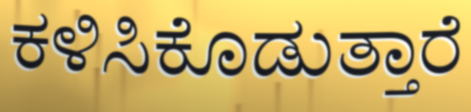
ಕಳಿಸಿಕೊಡುತ್ತಾರೆ